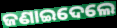
ଜଣାଇଦେଲେ